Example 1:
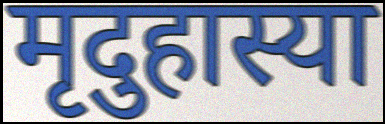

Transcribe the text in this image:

मृदुहास्या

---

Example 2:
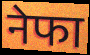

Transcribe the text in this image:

नेफा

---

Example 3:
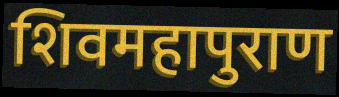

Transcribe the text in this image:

शिवमहापुराण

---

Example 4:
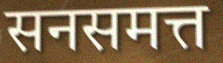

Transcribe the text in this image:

सनसमत्त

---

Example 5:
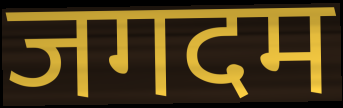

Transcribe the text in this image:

जगदम